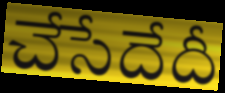
చేసేదేదీ